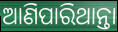
ଆଣିପାରିଥାନ୍ତା